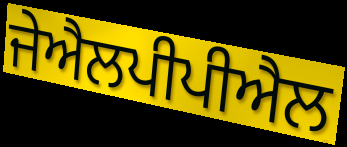
ਜੇਐਲਪੀਪੀਐਲ